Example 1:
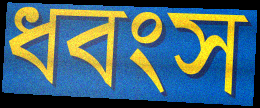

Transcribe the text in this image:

ধবংস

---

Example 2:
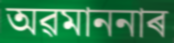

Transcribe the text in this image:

অৱমাননাৰ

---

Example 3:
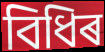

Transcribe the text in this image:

বিধিৰ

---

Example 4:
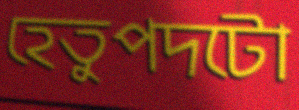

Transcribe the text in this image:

হেতুপদটো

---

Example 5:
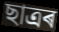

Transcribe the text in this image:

ছাত্ৰৰ